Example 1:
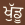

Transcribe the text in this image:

ਖੁੱਡੂ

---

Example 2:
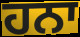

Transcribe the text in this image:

ਹਨਾ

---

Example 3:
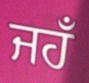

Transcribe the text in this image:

ਜਹਁ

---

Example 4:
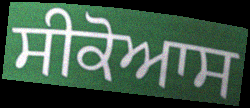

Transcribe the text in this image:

ਸੀਕੋਆਸ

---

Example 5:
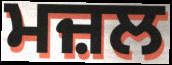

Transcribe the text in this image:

ਮਜ਼ਲ